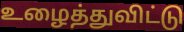
உழைத்துவிட்டு